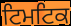
ਟਿਮਟਿਕ